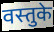
वस्तुके